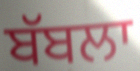
ਬੱਬਲਾ